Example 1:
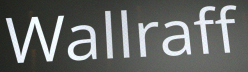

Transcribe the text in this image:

Wallraff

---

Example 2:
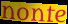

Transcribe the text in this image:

nonte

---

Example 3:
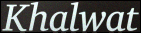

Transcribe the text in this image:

Khalwat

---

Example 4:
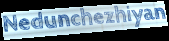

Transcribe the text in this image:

Nedunchezhiyan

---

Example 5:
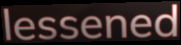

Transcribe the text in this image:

lessened